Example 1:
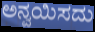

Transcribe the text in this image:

ಅನ್ವಯಿಸದು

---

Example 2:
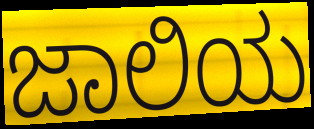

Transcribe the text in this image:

ಜಾಲಿಯ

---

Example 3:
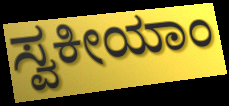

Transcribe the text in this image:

ಸ್ವಕೀಯಾಂ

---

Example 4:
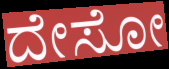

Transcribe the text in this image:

ದೇಸೋ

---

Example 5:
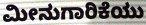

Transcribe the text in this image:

ಮೀನುಗಾರಿಕೆಯು